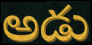
అడు